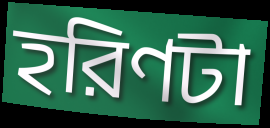
হরিণটা